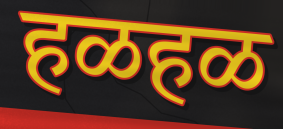
हळहळ